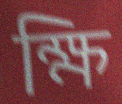
ক্ষি